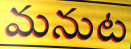
మనుట